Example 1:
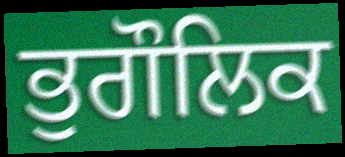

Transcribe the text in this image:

ਭੁਗੌਲਿਕ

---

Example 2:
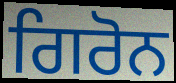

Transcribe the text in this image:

ਗਿਰੋਨ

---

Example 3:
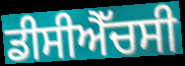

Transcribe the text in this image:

ਡੀਸੀਐੱਚਸੀ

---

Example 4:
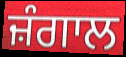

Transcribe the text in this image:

ਜ਼ੰਗਾਲ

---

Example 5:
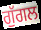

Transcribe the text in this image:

ਗੁੱਗਲ